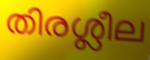
തിരശ്ലീല